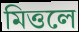
মিত্তলে